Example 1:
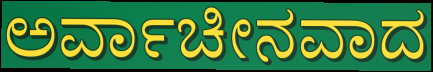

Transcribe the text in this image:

ಅರ್ವಾಚೀನವಾದ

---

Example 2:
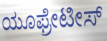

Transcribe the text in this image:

ಯೂಫ್ರೇಟೀಸ್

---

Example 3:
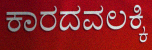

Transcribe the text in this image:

ಕಾರದವಲಕ್ಕಿ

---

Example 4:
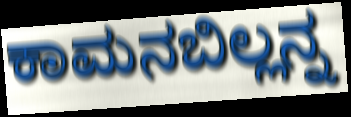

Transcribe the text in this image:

ಕಾಮನಬಿಲ್ಲನ್ನ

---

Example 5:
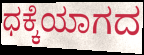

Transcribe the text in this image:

ಧಕ್ಕೆಯಾಗದ